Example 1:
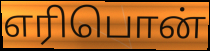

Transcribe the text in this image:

எரிபொன்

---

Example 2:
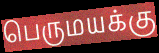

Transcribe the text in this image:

பெருமயக்கு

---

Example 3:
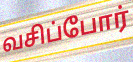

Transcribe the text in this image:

வசிப்போர்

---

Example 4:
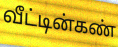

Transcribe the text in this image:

வீட்டின்கண்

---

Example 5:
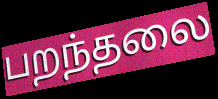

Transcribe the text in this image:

பறந்தலை